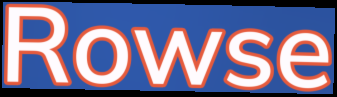
Rowse